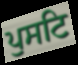
ਪੁਸਟਿ